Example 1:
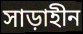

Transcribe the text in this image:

সাড়াহীন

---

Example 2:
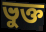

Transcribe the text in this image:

ভুক্ত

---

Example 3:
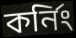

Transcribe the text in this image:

কর্নিং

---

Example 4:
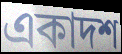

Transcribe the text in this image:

একাদশ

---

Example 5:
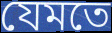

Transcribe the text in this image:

যেমতে